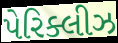
પેરિક્લીઝ